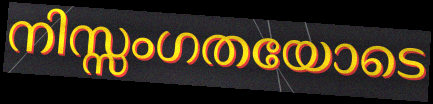
നിസ്സംഗതയോടെ